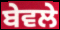
ਬੇਵਲੇ